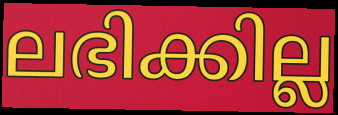
ലഭിക്കില്ല